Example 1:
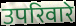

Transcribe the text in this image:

उपरिवारे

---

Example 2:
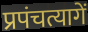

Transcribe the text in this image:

प्रपंचत्यागें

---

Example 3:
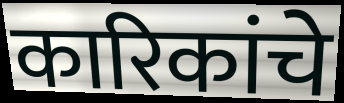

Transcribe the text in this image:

कारिकांचे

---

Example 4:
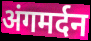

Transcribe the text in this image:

अंगमर्दन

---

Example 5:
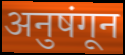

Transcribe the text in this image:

अनुषंगून